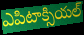
ఎపిటాక్సియల్